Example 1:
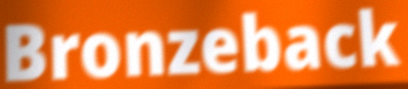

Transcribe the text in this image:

Bronzeback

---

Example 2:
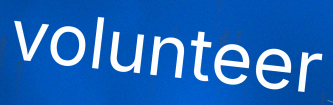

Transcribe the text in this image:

volunteer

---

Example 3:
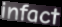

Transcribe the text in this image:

infact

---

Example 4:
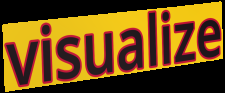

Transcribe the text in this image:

visualize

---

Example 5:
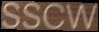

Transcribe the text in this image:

SSCW